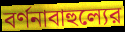
বর্ণনাবাহুল্যের